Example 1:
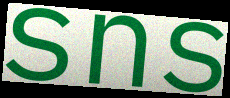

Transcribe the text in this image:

sns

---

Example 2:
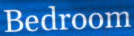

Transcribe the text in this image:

Bedroom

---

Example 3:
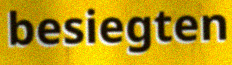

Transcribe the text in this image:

besiegten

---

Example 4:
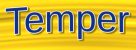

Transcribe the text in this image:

Temper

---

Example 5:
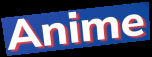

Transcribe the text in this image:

Anime